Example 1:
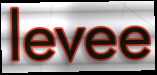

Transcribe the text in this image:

levee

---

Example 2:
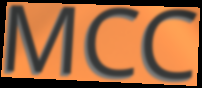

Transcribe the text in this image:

MCC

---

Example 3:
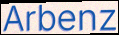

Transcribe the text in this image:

Arbenz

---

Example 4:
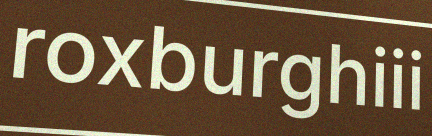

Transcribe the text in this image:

roxburghiii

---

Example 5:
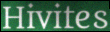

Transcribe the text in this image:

Hivites